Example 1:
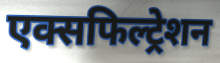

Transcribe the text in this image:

एक्सफिल्ट्रेशन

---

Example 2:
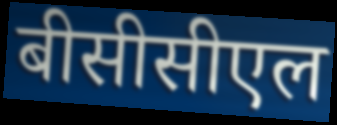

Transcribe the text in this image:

बीसीसीएल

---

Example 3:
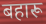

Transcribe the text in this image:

बहारू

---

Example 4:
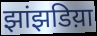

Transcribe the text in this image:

झांझडिय़ा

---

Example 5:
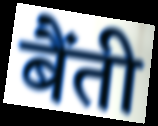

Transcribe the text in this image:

बैंती